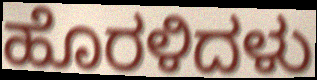
ಹೊರಳಿದಳು